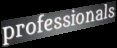
professionals